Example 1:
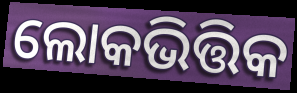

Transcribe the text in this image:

ଲୋକଭିତ୍ତିକ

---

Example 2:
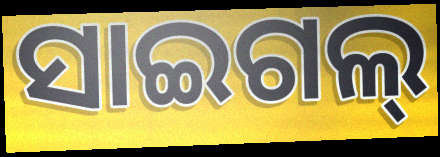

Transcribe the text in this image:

ସାଇଗଲ୍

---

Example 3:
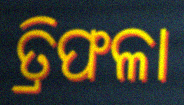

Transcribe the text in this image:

ତ୍ରିଫଳା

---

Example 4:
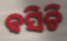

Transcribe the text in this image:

ବସିଚି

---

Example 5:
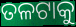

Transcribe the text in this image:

ତଳଟାକୁ